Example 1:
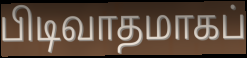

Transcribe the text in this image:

பிடிவாதமாகப்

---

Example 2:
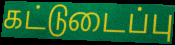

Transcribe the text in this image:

கட்டுடைப்பு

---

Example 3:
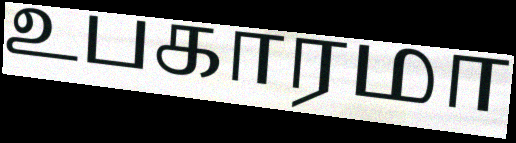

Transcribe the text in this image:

உபகாரமா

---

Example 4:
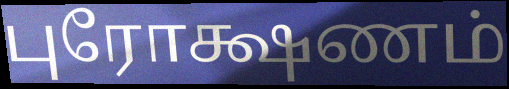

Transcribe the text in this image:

புரோக்ஷணம்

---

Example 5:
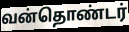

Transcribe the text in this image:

வன்தொண்டர்